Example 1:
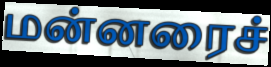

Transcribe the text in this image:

மன்னரைச்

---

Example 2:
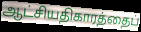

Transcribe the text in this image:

ஆட்சியதிகாரத்தைப்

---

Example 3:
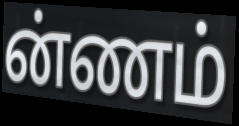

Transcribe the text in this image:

ன்ணம்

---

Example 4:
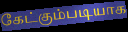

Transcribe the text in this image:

கேட்கும்படியாக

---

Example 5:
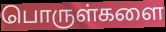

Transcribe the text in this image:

பொருள்களை